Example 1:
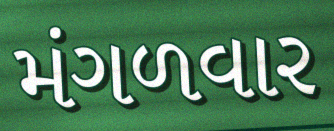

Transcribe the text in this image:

મંગળવાર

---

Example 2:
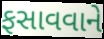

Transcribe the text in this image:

ફસાવવાને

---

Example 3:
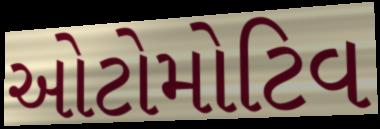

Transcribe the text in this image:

ઓટોમોટિવ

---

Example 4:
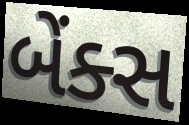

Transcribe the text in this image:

બેંક્સ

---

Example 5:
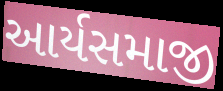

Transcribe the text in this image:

આર્યસમાજી